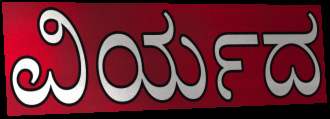
ವಿರ್ಯದ